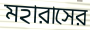
মহারাসের